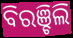
ବିରଞ୍ଚିଲି